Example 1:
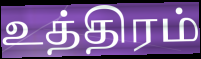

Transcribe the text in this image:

உத்திரம்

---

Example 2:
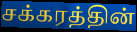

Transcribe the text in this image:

சக்கரத்தின்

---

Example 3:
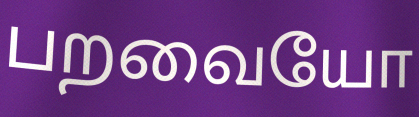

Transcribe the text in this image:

பறவையோ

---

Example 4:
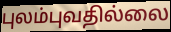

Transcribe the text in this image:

புலம்புவதில்லை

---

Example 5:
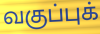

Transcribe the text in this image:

வகுப்புக்